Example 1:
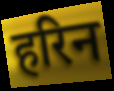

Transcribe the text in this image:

हरिन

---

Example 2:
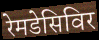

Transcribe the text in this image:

रेमडेसिविर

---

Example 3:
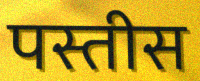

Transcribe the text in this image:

पस्तीस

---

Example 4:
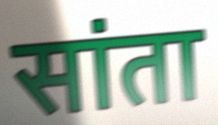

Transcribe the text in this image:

सांता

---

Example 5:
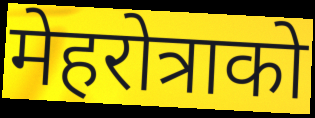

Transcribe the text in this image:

मेहरोत्राको